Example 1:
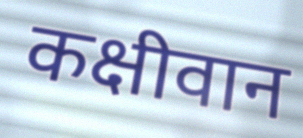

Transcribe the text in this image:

कक्षीवान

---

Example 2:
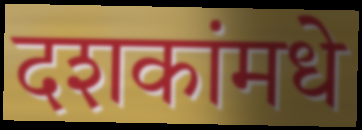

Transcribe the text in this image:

दशकांमधे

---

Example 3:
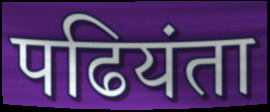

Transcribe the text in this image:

पढियंता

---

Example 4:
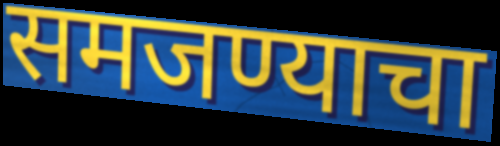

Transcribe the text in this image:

समजण्याचा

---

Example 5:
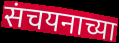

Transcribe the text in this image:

संचयनाच्या